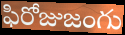
ఫిరోజుజంగు